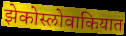
झेकोस्लोवाकियात